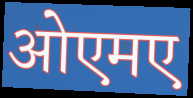
ओएमए